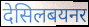
देसिलबयनर